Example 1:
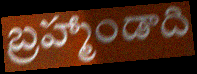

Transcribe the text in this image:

బ్రహ్మాండాది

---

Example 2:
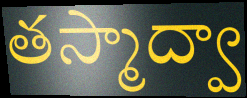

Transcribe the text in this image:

తస్మాద్వా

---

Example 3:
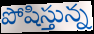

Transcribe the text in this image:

పోషిస్తున్న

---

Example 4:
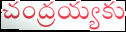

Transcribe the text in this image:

చంద్రయ్యకు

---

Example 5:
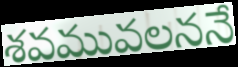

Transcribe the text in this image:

శవమువలననే